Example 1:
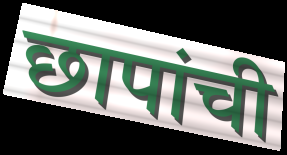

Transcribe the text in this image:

छापांची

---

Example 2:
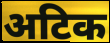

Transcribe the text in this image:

अटिक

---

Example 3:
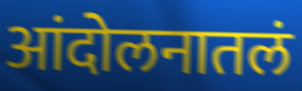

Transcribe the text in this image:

आंदोलनातलं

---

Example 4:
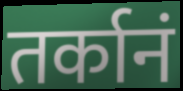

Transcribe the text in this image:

तर्कानं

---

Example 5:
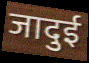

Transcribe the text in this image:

जादुई